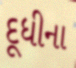
દૂધીના